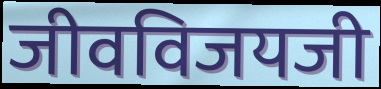
जीवविजयजी